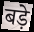
बड़े